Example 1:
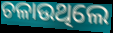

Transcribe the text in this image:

ଚଳାଉଥିଲେ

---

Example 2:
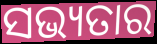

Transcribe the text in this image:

ସଭ୍ୟତାର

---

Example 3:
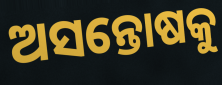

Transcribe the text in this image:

ଅସନ୍ତୋଷକୁ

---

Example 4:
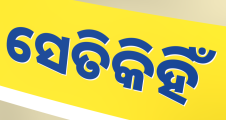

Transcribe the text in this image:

ସେତିକିହିଁ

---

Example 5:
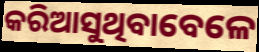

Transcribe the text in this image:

କରିଆସୁଥିବାବେଳେ